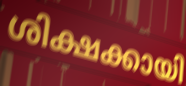
ശിക്ഷക്കായി